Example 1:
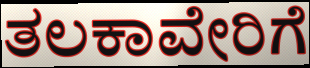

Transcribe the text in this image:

ತಲಕಾವೇರಿಗೆ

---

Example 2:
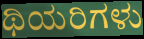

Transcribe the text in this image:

ಥಿಯರಿಗಳು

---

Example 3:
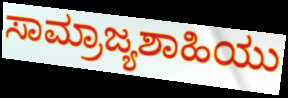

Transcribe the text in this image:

ಸಾಮ್ರಾಜ್ಯಶಾಹಿಯು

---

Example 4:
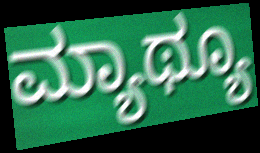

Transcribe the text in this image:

ಮ್ಯಾಥ್ಯೂ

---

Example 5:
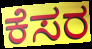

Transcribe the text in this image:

ಕೆಸರ